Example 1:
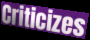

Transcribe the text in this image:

Criticizes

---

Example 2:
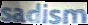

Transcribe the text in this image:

sadism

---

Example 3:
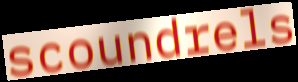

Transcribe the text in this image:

scoundrels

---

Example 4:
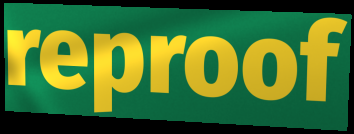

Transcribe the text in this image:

reproof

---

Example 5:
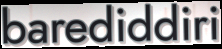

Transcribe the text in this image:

barediddiri